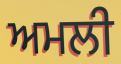
ਅਮਲੀ